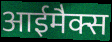
आईमैक्स